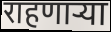
राहणाऱ्या